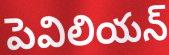
పెవిలియన్